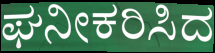
ಘನೀಕರಿಸಿದ